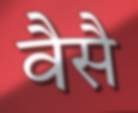
वैसै